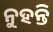
ନୁହନ୍ତି